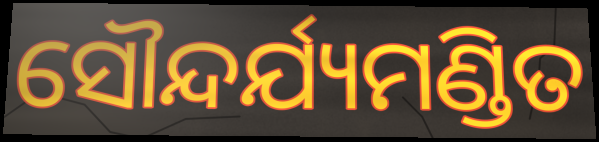
ସୌନ୍ଦର୍ଯ୍ୟମଣ୍ଡିତ